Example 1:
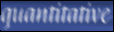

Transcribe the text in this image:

quantitative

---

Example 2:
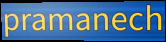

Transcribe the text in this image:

pramanech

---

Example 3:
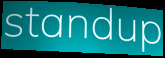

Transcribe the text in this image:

standup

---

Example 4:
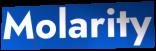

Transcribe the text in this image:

Molarity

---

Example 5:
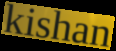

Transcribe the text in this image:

kishan